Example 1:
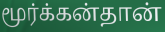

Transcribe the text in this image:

மூர்க்கன்தான்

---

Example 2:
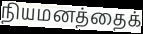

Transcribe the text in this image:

நியமனத்தைக்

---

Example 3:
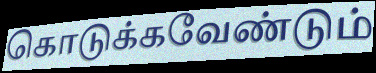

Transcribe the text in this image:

கொடுக்கவேண்டும்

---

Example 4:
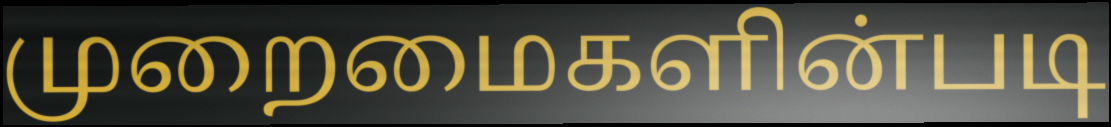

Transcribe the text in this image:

முறைமைகளின்படி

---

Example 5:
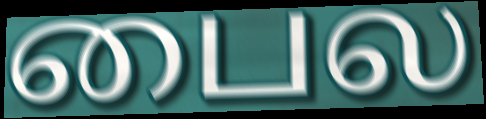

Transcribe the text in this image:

பைல